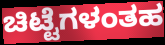
ಚಿಟ್ಟೆಗಳಂತಹ